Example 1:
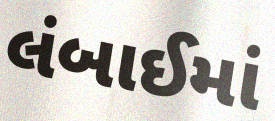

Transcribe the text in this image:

લંબાઈમાં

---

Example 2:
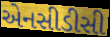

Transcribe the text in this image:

એનસીડીસી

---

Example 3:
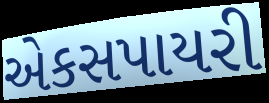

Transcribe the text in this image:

એકસપાયરી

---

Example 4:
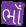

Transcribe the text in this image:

ભૉં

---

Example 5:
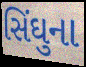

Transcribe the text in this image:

સિંઘુના